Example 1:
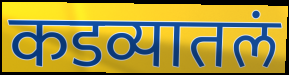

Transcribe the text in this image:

कडव्यातलं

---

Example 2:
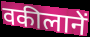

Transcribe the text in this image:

वकीलानें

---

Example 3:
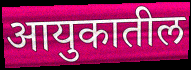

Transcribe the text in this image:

आयुकातील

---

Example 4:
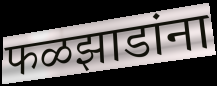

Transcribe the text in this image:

फळझाडांना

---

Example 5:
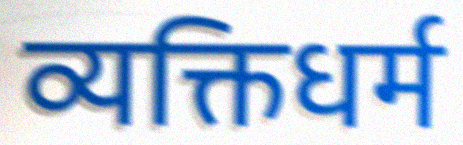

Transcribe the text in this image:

व्यक्तिधर्म